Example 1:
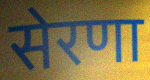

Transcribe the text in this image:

सेरणा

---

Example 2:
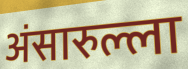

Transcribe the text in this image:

अंसारुल्ला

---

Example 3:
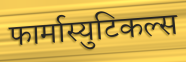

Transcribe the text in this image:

फार्मास्युटिकल्स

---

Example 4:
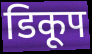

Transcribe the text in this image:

डिकूप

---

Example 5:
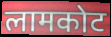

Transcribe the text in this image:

लामकोट